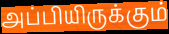
அப்பியிருக்கும்